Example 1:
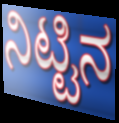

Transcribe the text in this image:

ನಿಟ್ಟಿನ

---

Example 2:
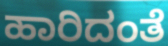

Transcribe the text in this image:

ಹಾರಿದಂತೆ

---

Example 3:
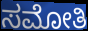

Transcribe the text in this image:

ಸಮೋತಿ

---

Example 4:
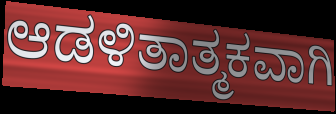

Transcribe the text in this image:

ಆಡಳಿತಾತ್ಮಕವಾಗಿ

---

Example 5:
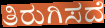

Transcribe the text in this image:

ತಿರುಗಿಸದೆ